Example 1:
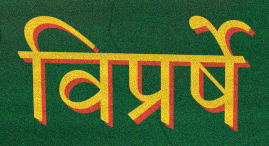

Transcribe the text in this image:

विप्रर्षे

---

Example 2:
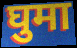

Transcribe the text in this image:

घुमा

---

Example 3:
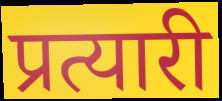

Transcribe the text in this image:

प्रत्यारी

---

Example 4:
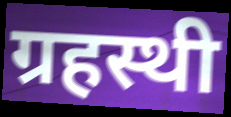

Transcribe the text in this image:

ग्रहस्थी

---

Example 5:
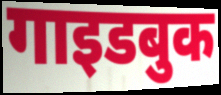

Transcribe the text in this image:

गाइडबुक